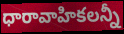
ధారావాహికలన్నీ